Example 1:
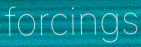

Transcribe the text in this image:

forcings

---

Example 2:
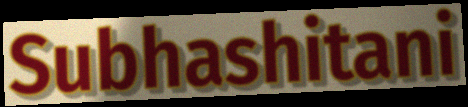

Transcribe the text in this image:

Subhashitani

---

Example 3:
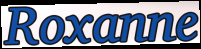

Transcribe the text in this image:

Roxanne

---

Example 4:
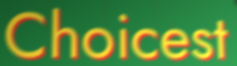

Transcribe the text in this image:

Choicest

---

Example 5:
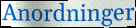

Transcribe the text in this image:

Anordninger